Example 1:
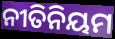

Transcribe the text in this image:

ନୀତିନିୟମ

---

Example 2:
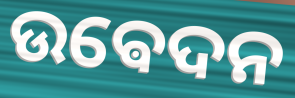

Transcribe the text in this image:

ଉଵେଦନ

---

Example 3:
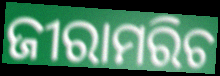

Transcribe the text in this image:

ଜୀରାମରିଚ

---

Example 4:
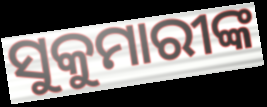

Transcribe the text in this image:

ସୁକୁମାରୀଙ୍କ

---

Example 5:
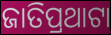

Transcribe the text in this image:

ଜାତିପ୍ରଥାଟା